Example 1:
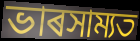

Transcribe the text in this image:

ভাৰসাম্যত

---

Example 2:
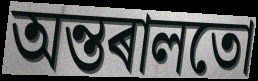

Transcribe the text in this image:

অন্তৰালতো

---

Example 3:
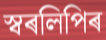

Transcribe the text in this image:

স্বৰলিপিৰ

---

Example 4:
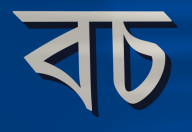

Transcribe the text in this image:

বচ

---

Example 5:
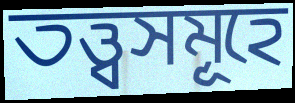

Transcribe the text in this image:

তত্ত্বসমূহে